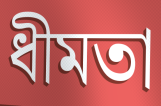
ধীমতা